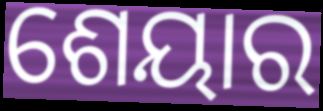
ଶେୟାର